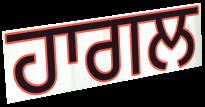
ਹਾਗਲ